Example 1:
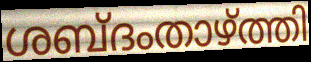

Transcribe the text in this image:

ശബ്ദംതാഴ്ത്തി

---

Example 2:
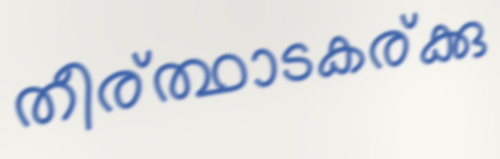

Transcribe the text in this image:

തീര്ത്ഥാടകര്ക്കു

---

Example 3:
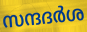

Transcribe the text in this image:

സന്ദദർശ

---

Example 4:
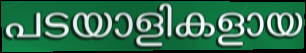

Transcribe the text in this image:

പടയാളികളായ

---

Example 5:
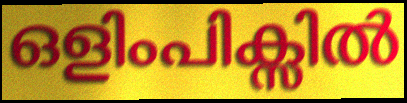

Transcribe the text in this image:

ഒളിംപിക്സിൽ